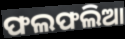
ଫଲଫଲିଆ